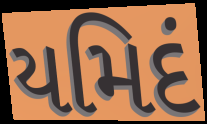
યમિદં